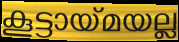
കൂട്ടായ്മയല്ല